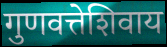
गुणवत्तेशिवाय